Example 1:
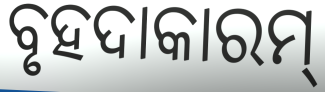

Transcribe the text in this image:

ବୃହଦାକାରମ୍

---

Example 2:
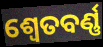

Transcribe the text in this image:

ଶ୍ୱେତବର୍ଣ୍ଣ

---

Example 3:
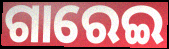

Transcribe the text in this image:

ଗାରେଇ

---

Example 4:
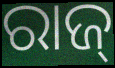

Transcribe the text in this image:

ରାଜ୍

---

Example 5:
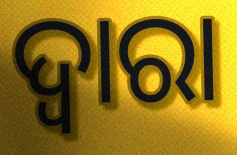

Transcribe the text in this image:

ଦ୍ଵାରା